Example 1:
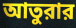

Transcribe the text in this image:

আতুরার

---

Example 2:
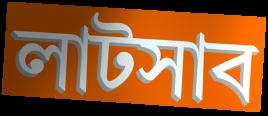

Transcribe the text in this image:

লাটসাব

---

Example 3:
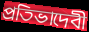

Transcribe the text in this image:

প্রতিভাদেবী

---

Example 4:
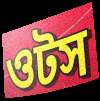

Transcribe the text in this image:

ওটস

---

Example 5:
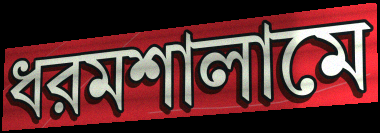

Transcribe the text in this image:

ধরমশালামে